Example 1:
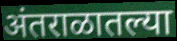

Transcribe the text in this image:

अंतराळातल्या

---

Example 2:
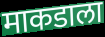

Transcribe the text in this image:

माकडाला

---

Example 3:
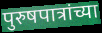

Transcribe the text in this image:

पुरुषपात्रांच्या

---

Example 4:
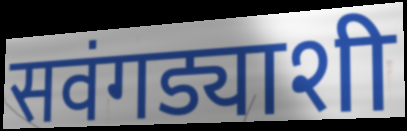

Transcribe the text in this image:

सवंगड्याशी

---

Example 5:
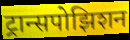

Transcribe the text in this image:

ट्रान्सपोझिशन